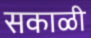
सकाळी